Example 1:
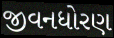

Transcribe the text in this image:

જીવનધોરણ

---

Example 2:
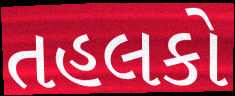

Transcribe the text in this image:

તહલકો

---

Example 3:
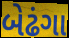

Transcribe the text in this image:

બેઢંગા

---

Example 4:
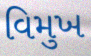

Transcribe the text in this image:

વિમુખ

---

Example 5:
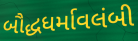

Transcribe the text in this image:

બૌદ્ધધર્માવલંબી